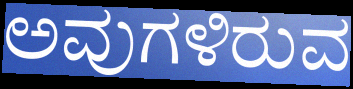
ಅವುಗಳಿರುವ